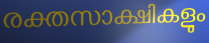
രക്തസാക്ഷികളും